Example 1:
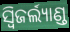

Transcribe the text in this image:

ସ୍ୱିଜର୍ଲ୍ୟାଣ୍ଡ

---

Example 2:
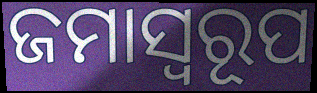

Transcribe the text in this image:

ଜମାସ୍ବରୂପ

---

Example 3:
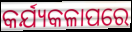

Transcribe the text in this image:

କର୍ଯ୍ୟକଳାପରେ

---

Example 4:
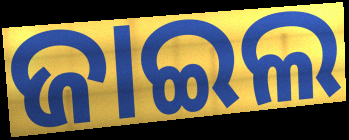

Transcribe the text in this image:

ଜାଇଲ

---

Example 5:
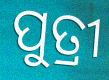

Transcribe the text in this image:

ପୁତ୍ରୀ